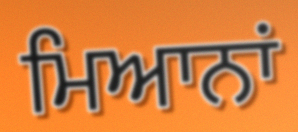
ਮਿਆਨਾਂ